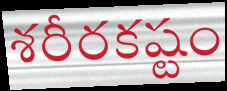
శరీరకష్టం